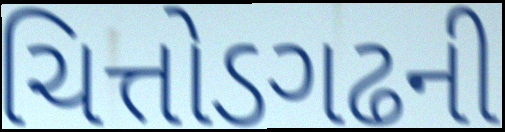
ચિત્તોડગઢની